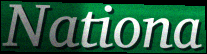
Nationa